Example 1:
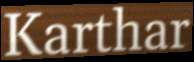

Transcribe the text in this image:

Karthar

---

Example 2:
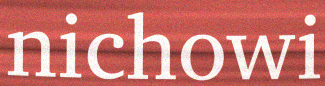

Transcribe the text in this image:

nichowi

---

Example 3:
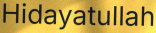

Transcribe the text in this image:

Hidayatullah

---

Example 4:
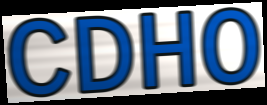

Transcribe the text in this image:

CDHO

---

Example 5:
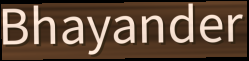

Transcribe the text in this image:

Bhayander